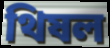
থিষল